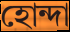
হোন্দা